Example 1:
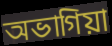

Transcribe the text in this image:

অভাগিয়া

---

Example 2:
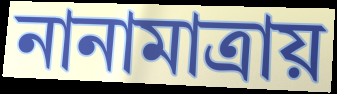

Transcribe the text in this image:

নানামাত্রায়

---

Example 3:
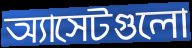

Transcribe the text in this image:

অ্যাসেটগুলো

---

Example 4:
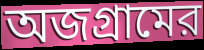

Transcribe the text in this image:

অজগ্রামের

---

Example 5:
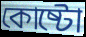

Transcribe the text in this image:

কোষ্টো